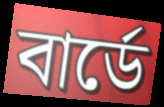
বার্ডে